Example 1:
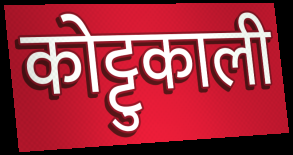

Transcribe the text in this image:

कोट्टुकाली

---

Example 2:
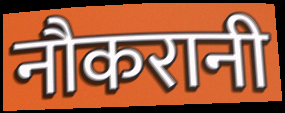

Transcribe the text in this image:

नौकरानी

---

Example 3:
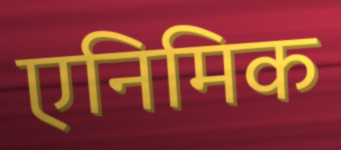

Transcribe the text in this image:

एनिमिक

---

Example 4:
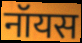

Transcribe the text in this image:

नॉयस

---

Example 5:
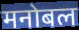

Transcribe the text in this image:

मनोबल